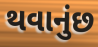
થવાનુંછ